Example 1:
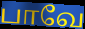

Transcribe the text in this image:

பாவே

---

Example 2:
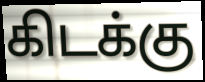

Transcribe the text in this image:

கிடக்கு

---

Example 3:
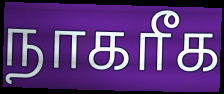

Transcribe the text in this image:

நாகரீக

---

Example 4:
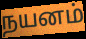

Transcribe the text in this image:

நயனம்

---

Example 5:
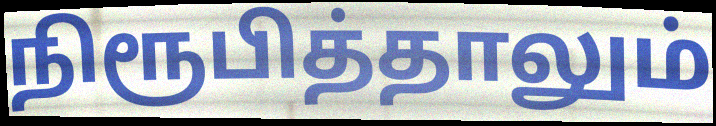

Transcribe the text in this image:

நிரூபித்தாலும்